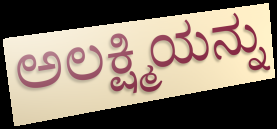
ಅಲಕ್ಷ್ಮಿಯನ್ನು